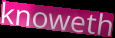
knoweth